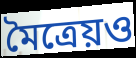
মৈত্রেয়ও